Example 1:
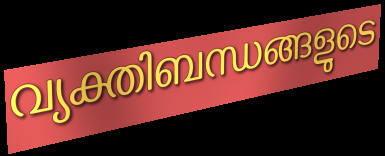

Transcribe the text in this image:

വ്യക്തിബന്ധങ്ങളുടെ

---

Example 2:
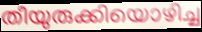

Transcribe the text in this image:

തീയുരുക്കിയൊഴിച്ച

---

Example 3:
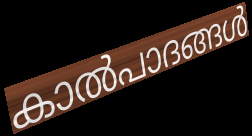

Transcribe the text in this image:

കാൽപാദങ്ങൾ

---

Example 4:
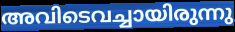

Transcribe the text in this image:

അവിടെവച്ചായിരുന്നു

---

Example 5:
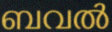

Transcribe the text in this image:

ബവൽ